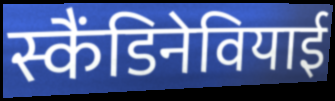
स्कैंडिनेवियाई